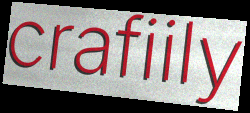
crafiily